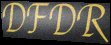
DFDR